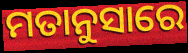
ମତାନୁସାରେ